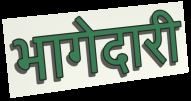
भागेदारी